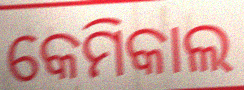
କେମିକାଲ